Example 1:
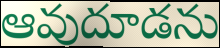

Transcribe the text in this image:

ఆవుదూడను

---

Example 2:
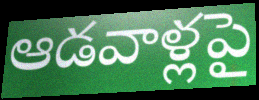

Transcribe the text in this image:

ఆడవాళ్లపై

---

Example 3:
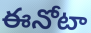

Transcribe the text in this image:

ఈనోటా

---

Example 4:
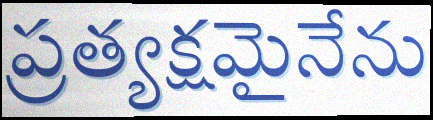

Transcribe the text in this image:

ప్రత్యక్షమైనేను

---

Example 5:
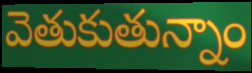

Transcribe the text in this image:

వెతుకుతున్నాం